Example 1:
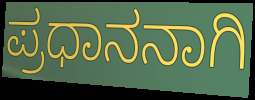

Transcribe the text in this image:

ಪ್ರಧಾನನಾಗಿ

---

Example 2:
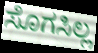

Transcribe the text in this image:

ಸೊಗಸಿಲ್ಲ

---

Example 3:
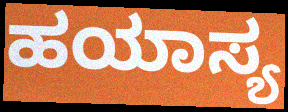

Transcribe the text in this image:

ಹಯಾಸ್ಯ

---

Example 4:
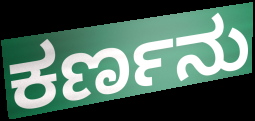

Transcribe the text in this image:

ಕರ್ಣನು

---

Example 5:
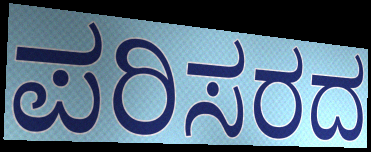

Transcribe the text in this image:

ಪರಿಸರದ